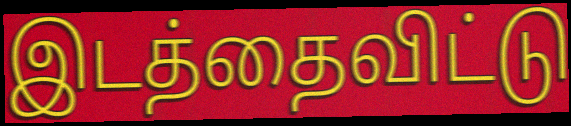
இடத்தைவிட்டு